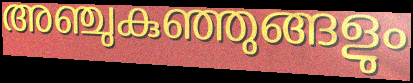
അഞ്ചുകുഞ്ഞുങ്ങളും